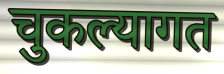
चुकल्यागत